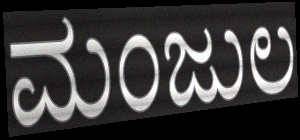
ಮಂಜುಲ